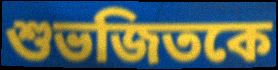
শুভজিতকে